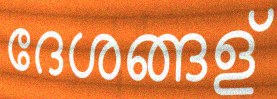
ദേശങ്ങള്